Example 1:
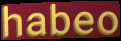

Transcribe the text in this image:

habeo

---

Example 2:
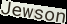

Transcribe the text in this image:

Jewson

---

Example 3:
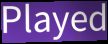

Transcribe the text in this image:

Played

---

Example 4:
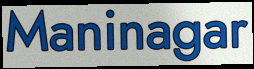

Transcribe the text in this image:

Maninagar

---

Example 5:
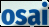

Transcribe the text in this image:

osai